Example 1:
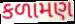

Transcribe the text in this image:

કળામણ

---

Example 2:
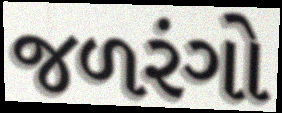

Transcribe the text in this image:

જળરંગો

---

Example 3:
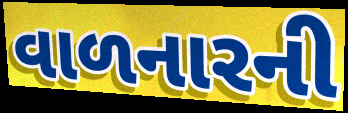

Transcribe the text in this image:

વાળનારની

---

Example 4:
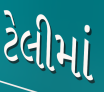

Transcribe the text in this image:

ટેલીમાં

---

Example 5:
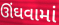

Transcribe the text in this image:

ઊંઘવામાં